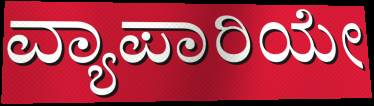
ವ್ಯಾಪಾರಿಯೇ